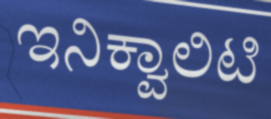
ಇನಿಕ್ವಾಲಿಟಿ